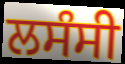
ਲਸੰਸੀ